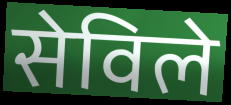
सेविले